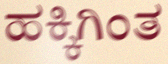
ಹಕ್ಕಿಗಿಂತ